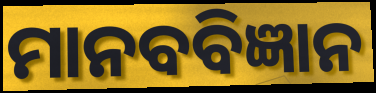
ମାନବବିଜ୍ଞାନ